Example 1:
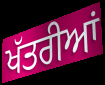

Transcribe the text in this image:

ਖੱਤਰੀਆਂ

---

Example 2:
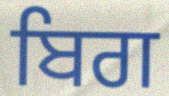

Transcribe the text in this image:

ਬਿਗ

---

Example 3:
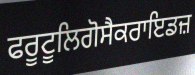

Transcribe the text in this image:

ਫਰੂਟੂਲਿਗੋਸੈਕਰਾਇਡਜ਼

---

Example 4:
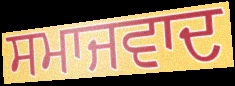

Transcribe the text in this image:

ਸਮਾਜਵਾਦ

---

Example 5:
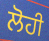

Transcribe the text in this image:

ਲੋਹੀ